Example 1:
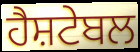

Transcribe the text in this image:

ਹੈਸ਼ਟੇਬਲ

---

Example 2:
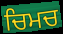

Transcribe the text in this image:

ਚਿਮਚ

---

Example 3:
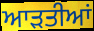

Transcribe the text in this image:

ਆੜਤੀਆਂ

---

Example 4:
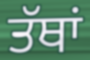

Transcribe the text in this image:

ਤੱਥਾਂ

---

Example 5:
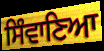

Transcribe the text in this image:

ਸਿੰਵਾਣਿਆ